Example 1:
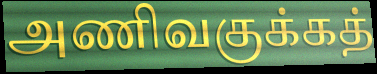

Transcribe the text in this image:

அணிவகுக்கத்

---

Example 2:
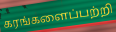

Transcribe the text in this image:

கரங்களைப்பற்றி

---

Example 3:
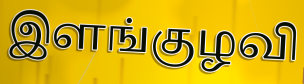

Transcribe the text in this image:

இளங்குழவி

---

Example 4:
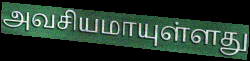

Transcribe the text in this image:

அவசியமாயுள்ளது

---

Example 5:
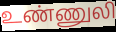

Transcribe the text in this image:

உண்ணுலி